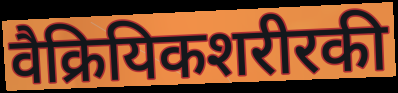
वैक्रियिकशरीरकी